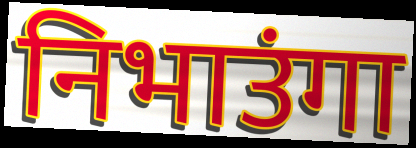
निभाउंगा